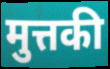
मुत्तकी